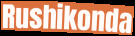
Rushikonda